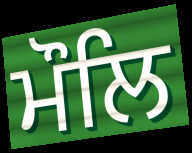
ਮੌਲਿ